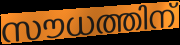
സൗധത്തിന്